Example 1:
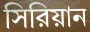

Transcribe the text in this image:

সিরিয়ান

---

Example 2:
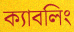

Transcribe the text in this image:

ক্যাবলিং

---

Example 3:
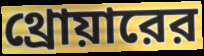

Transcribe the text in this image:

থ্রোয়ারের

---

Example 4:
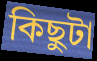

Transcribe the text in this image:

কিছুটা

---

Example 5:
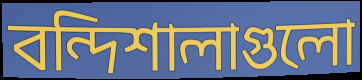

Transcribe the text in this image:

বন্দিশালাগুলো